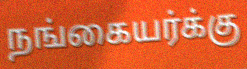
நங்கையர்க்கு